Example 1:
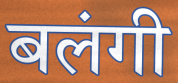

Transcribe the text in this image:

बलंगी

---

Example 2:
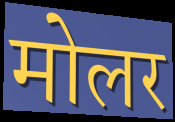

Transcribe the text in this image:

मोलर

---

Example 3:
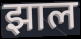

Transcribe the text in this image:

झाल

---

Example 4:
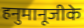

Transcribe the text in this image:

हनुमानूजीके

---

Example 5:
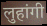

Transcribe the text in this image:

लुहांगी